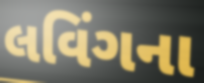
લવિંગના